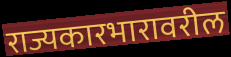
राज्यकारभारावरील